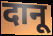
दानू